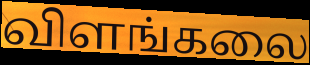
விளங்கலை